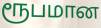
ரூபமான